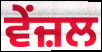
ਵੇਂਜ਼ਲ